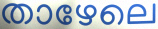
താഴേലെ